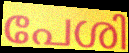
പേശി